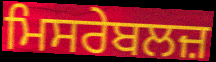
ਮਿਸਰੇਬਲਜ਼